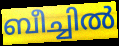
ബീച്ചിൽ